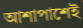
আশাপাশেই